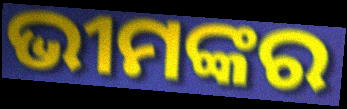
ଭୀମଙ୍କର